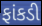
ફાંકડી